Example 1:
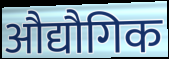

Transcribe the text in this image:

औद्यौगिक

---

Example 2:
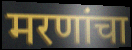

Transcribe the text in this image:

मरणांचा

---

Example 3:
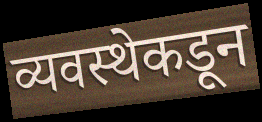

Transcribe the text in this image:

व्यवस्थेकडून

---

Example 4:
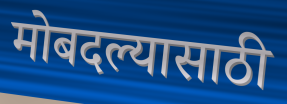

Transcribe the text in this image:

मोबदल्यासाठी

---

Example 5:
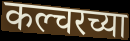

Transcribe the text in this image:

कल्चरच्या